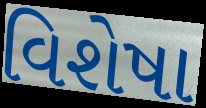
વિશેષા